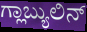
ಗ್ಲಾಬ್ಯುಲಿನ್